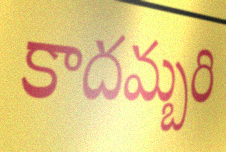
కాదమ్బరి